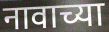
नावाच्या